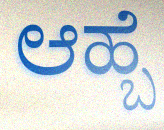
ಆಹ್ಬೆ